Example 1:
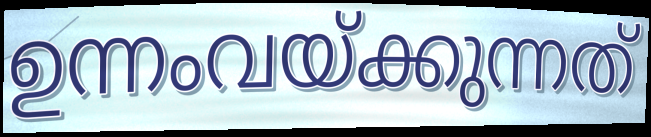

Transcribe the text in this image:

ഉന്നംവയ്ക്കുന്നത്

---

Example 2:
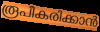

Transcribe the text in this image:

രൂപീകരിക്കാൻ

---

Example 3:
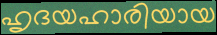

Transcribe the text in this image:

ഹൃദയഹാരിയായ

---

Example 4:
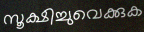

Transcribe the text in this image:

സൂക്ഷിച്ചുവെക്കുക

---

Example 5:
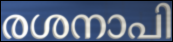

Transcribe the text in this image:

രശനാപി